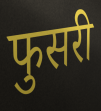
फुसरी